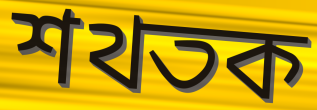
শথতক